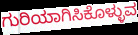
ಗುರಿಯಾಗಿಸಿಕೊಳ್ಳುವ